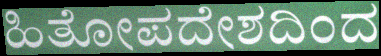
ಹಿತೋಪದೇಶದಿಂದ